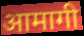
आमागी